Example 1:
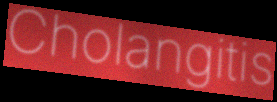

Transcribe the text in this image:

Cholangitis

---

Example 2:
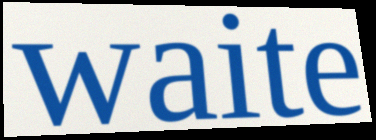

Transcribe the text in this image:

waite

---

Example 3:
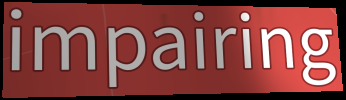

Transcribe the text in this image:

impairing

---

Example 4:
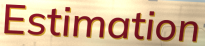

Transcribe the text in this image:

Estimation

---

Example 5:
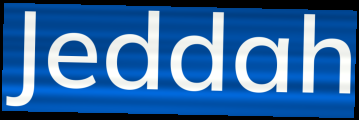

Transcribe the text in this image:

Jeddah